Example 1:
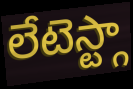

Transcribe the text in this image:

లేటెస్ట్గా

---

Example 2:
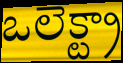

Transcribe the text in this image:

ఒలెక్ట్రా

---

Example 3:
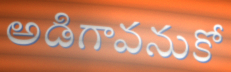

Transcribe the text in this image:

అడిగావనుకో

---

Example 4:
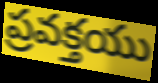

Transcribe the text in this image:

ప్రవక్తయు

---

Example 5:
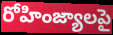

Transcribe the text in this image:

రోహింజ్యాలపై